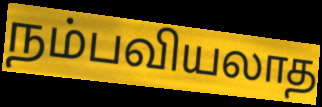
நம்பவியலாத